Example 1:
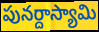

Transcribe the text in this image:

పునర్దాస్యామి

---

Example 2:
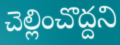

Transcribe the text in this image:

చెల్లించొద్దని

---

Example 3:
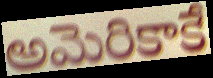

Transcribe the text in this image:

అమెరికాకే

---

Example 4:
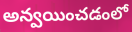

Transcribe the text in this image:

అన్వయించడంలో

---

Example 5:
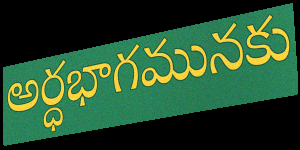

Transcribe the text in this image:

అర్ధభాగమునకు